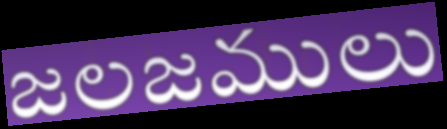
జలజములు